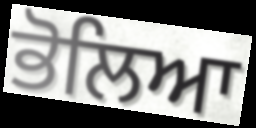
ਭੋਲਿਆ